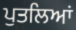
ਪੁਤਲਿਆਂ